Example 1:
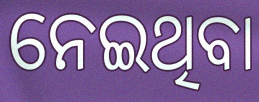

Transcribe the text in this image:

ନେଇଥିବା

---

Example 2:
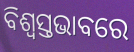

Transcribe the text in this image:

ବିଶ୍ୱସ୍ତଭାବରେ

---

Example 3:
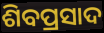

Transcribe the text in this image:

ଶିବପ୍ରସାଦ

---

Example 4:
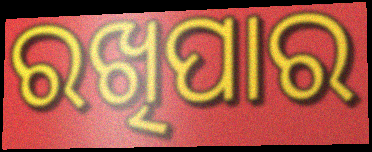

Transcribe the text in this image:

ରଖିପାର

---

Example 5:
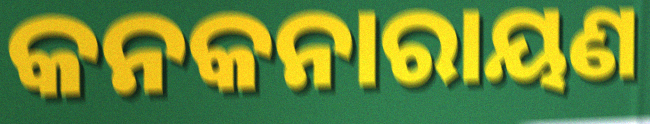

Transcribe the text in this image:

କନକନାରାୟଣ